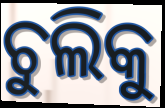
ଚୁଲିକୁ